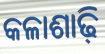
କଳାଶାଢ଼ି